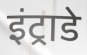
इंट्राडे